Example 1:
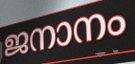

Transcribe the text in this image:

ജനാനം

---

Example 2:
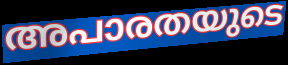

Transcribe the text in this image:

അപാരതയുടെ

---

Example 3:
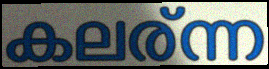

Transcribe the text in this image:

കലര്ന്ന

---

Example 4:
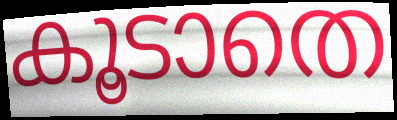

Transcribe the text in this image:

കൂടാതെ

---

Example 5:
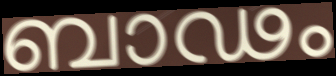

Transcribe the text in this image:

ബാഢം